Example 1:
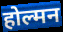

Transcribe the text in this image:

होल्मन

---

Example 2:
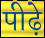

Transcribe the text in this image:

पीढ़े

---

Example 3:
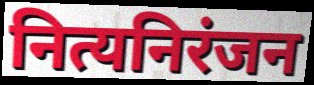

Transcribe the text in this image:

नित्यनिरंजन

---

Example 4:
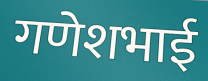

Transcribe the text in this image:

गणेशभाई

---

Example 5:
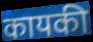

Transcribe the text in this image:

कायकी